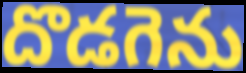
దొడగెను